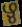
ഴു